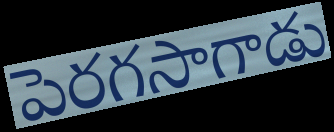
పెరగసాగాడు